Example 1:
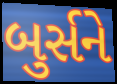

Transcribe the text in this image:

બુર્સને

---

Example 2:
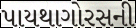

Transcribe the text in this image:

પાયથાગોરસની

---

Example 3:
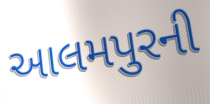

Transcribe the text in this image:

આલમપુરની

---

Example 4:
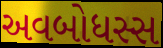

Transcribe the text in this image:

અવબોધસ્સ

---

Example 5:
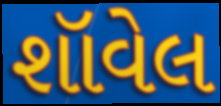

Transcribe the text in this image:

શૉવેલ